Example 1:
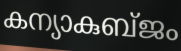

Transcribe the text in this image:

കന്യാകുബ്ജം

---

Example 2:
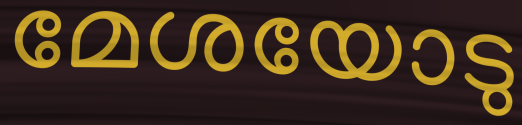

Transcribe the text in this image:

മേശയോടു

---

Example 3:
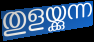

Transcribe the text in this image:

തുളയ്ക്കുന്ന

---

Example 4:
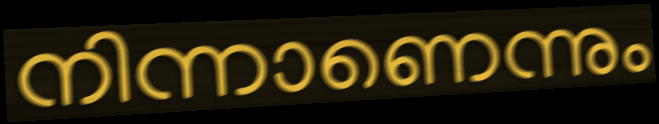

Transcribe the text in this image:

നിന്നാണെന്നും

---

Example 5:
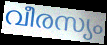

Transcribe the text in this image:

വീരസ്യം